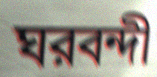
ঘরবন্দী